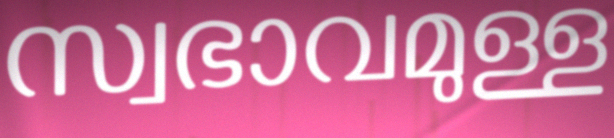
സ്വഭാവമുള്ള